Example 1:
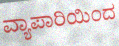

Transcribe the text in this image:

ವ್ಯಾಪಾರಿಯಿಂದ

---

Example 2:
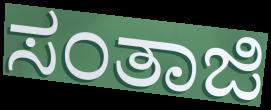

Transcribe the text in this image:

ಸಂತಾಜಿ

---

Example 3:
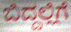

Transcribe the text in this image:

ಬಿದ್ದಲ್ಲಿಗೆ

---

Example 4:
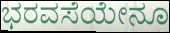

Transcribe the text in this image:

ಭರವಸೆಯೇನೂ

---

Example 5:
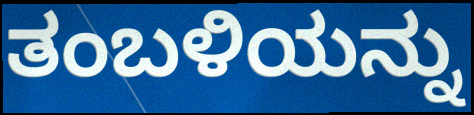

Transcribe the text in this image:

ತಂಬಳಿಯನ್ನು